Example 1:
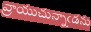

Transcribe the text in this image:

వ్రాయుచున్నాఁడను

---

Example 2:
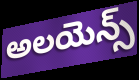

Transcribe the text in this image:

అలయెన్స్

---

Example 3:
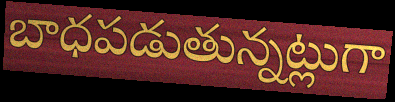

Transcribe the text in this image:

బాధపడుతున్నట్లుగా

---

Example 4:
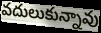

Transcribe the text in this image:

వదులుకున్నావు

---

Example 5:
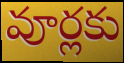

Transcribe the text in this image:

వూర్లకు